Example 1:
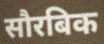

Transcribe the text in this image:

सौरबिक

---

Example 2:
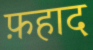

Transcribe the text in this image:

फ़हाद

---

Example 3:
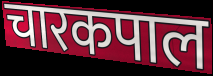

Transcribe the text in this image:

चारकपाल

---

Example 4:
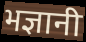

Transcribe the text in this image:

भज्ञानी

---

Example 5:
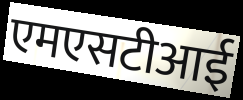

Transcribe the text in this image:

एमएसटीआई